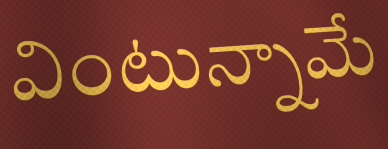
వింటున్నామే